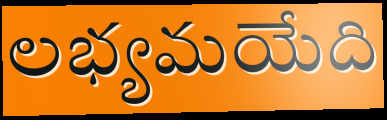
లభ్యమయేది